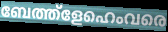
ബേത്ത്ളേഹെംവരെ